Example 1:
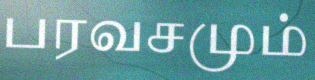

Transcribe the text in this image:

பரவசமும்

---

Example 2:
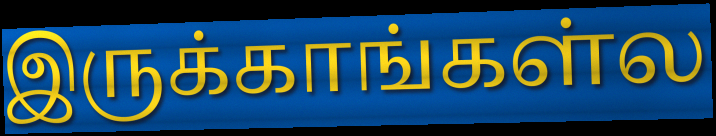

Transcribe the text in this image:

இருக்காங்கள்ல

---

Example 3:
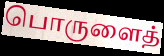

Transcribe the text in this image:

பொருளைத்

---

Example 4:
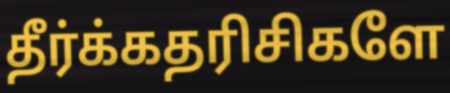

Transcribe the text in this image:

தீர்க்கதரிசிகளே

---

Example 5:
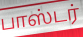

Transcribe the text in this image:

பாஸ்டர்